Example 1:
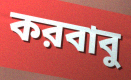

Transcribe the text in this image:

করবাবু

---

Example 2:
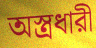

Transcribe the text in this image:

অস্ত্রধারী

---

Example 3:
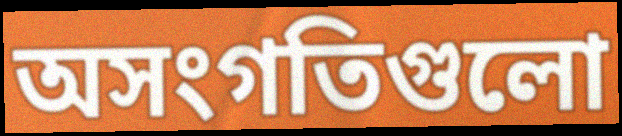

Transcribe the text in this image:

অসংগতিগুলো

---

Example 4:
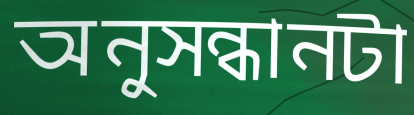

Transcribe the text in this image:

অনুসন্ধানটা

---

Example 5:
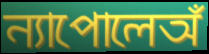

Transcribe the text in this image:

ন্যাপোলেঅঁ